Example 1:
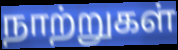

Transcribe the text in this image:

நாற்றுகள்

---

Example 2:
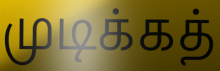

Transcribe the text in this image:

முடிக்கத்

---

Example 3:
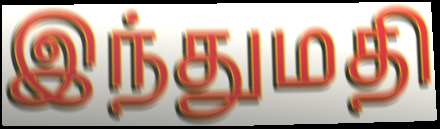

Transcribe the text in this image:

இந்துமதி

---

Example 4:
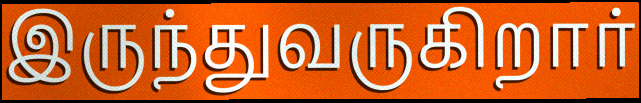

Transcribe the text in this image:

இருந்துவருகிறார்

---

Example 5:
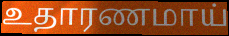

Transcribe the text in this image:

உதாரணமாய்